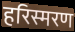
हरिस्मरण